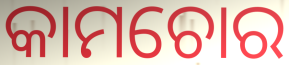
କାମଚୋର